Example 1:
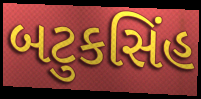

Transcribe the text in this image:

બટુકસિંહ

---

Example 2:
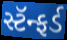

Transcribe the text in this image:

સ્ટૅન્ફર્ડ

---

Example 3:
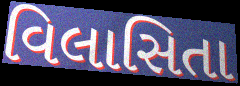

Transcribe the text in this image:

વિલાસિતા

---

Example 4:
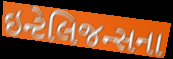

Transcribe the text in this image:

ઇન્ટેલિજન્સના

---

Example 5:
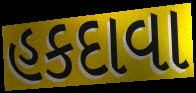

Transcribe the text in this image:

હકદાવા